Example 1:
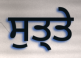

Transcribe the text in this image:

ਸੁਤ੍ਤੇ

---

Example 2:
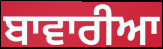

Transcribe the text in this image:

ਬਾਵਾਰੀਆ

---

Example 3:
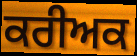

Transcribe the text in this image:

ਕਰੀਅਕ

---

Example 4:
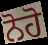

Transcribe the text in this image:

ਨੋਹੋ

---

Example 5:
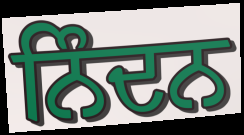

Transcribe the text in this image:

ਨਿੰਦਨ